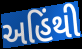
અહિંથી